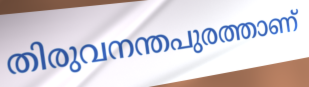
തിരുവനന്തപുരത്താണ്